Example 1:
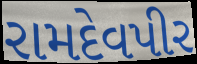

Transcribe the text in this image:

રામદેવપીર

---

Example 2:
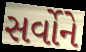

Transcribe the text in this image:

સર્વોને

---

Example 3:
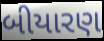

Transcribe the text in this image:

બીયારણ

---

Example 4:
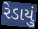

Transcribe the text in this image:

રેડાયું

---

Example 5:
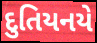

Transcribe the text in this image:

દુતિયનયે